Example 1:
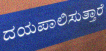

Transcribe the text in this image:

ದಯಪಾಲಿಸುತ್ತಾರೆ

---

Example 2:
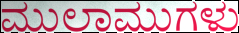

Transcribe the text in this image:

ಮುಲಾಮುಗಳು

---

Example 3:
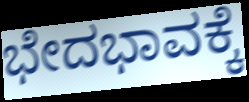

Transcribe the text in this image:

ಭೇದಭಾವಕ್ಕೆ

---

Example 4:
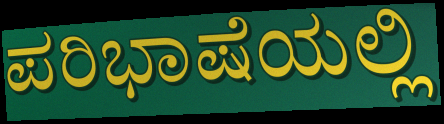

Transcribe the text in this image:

ಪರಿಭಾಷೆಯಲ್ಲಿ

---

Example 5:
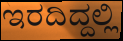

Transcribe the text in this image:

ಇರದಿದ್ದಲ್ಲಿ